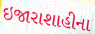
ઇજારાશાહીના